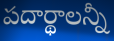
పదార్థాలన్నీ